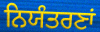
ਨਿਯੰਤਰਣਾਂ